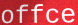
offce